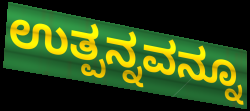
ಉತ್ಪನ್ನವನ್ನೂ